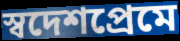
স্বদেশপ্রেমে